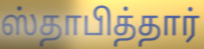
ஸ்தாபித்தார்